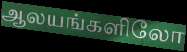
ஆலயங்களிலோ